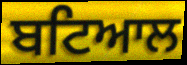
ਬਟਿਆਲ